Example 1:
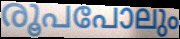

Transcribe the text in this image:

രൂപപോലും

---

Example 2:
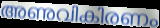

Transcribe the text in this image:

അണുവികിരണം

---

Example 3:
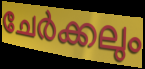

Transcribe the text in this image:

ചേർക്കലും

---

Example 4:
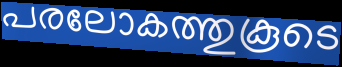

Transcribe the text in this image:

പരലോകത്തുകൂടെ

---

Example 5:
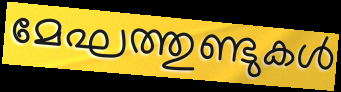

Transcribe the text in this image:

മേഘത്തുണ്ടുകൾ